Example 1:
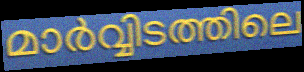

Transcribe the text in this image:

മാർവ്വിടത്തിലെ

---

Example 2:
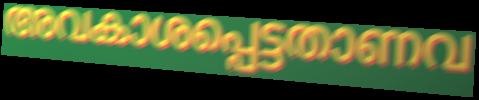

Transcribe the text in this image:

അവകാശപ്പെട്ടതാണവ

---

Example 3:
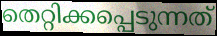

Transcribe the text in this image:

തെറ്റിക്കപ്പെടുന്നത്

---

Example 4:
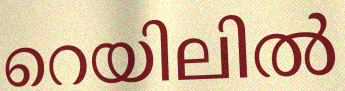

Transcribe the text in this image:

റെയിലിൽ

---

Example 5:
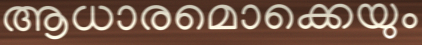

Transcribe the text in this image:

ആധാരമൊക്കെയും